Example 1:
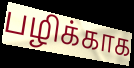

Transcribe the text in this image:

பழிக்காக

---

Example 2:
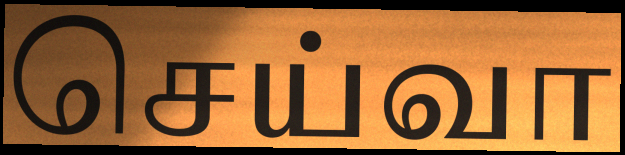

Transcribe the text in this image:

செய்வா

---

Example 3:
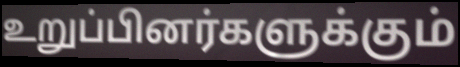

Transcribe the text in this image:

உறுப்பினர்களுக்கும்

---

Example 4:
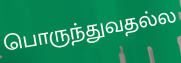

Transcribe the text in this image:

பொருந்துவதல்ல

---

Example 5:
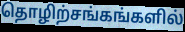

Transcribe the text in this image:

தொழிற்சங்கங்களில்